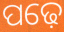
ପଢ଼େ